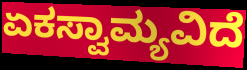
ಏಕಸ್ವಾಮ್ಯವಿದೆ